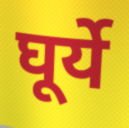
घूर्ये